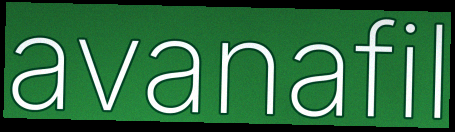
avanafil